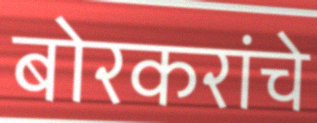
बोरकरांचे